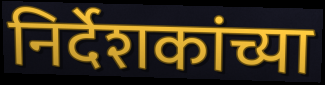
निर्देशकांच्या